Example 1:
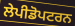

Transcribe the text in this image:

ਲੇਪੀਡੋਪਟਰਨ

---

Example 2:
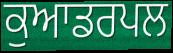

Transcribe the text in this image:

ਕੁਆਡਰਪਲ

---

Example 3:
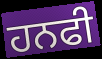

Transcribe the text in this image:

ਹਨਫੀ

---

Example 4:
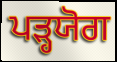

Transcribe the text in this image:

ਪੜ੍ਹਯੋਗ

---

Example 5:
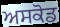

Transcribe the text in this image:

ਅਸਕੋਡ